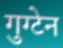
गुग्टेन